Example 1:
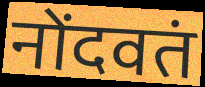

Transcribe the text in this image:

नोंदवतं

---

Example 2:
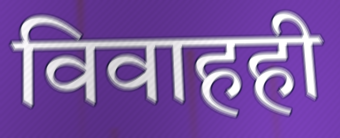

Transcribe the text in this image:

विवाहही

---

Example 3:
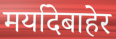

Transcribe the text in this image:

मर्यादेबाहेर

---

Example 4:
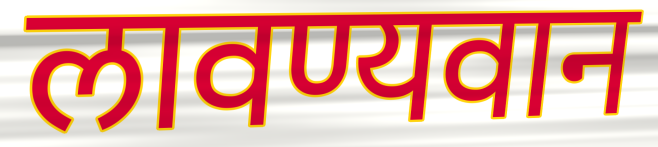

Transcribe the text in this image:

लावण्यवान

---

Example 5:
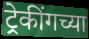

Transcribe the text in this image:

ट्रेकींगच्या